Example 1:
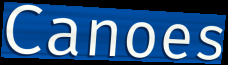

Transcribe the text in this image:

Canoes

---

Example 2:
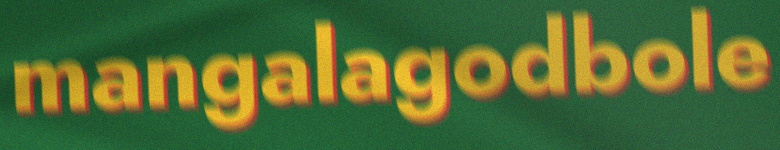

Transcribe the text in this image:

mangalagodbole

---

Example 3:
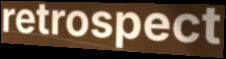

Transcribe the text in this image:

retrospect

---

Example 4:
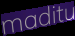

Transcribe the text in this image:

maditu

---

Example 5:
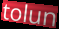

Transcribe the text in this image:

tolun